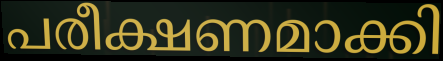
പരീക്ഷണമാക്കി